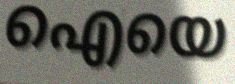
ഐയെ